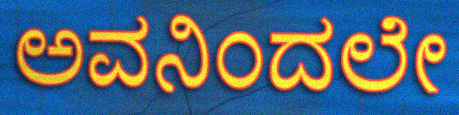
ಅವನಿಂದಲೇ